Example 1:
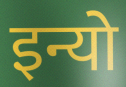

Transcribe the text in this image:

इन्यो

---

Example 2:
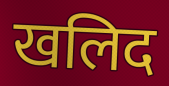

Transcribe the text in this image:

खलिद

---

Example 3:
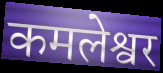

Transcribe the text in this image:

कमलेश्वर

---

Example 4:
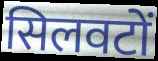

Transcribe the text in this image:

सिलवटों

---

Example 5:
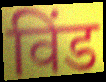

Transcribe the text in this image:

विंड